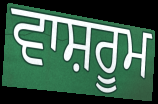
ਵਾਸ਼ਰੂਮ